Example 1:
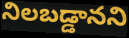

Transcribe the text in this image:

నిలబడ్డానని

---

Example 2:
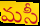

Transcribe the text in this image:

మసీ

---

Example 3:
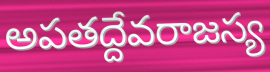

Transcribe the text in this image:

అపతద్దేవరాజస్య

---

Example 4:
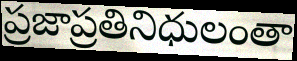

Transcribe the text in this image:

ప్రజాప్రతినిధులంతా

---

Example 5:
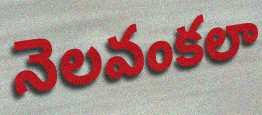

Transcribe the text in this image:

నెలవంకలా